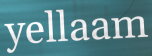
yellaam